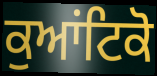
ਕੁਆਂਟਿਕੋ